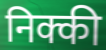
निक्की